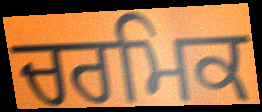
ਚਰਮਿਕ